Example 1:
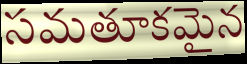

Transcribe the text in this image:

సమతూకమైన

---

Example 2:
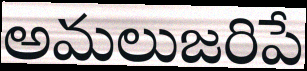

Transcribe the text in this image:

అమలుజరిపే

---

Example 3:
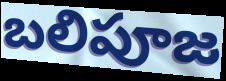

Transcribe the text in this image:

బలిపూజ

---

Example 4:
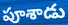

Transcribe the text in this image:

పూశాడు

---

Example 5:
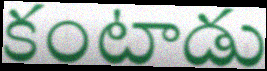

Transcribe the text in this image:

కంటాడు